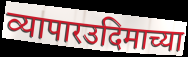
व्यापारउदिमाच्या